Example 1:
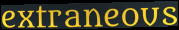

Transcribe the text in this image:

extraneous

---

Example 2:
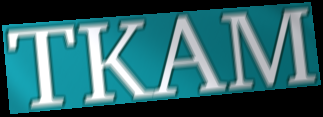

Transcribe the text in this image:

TKAM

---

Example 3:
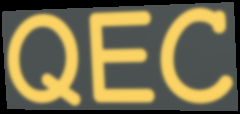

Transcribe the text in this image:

QEC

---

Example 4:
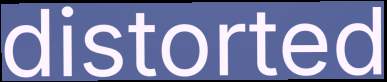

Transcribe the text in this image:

distorted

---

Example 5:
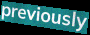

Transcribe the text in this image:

previously